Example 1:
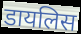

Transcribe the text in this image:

डायलिस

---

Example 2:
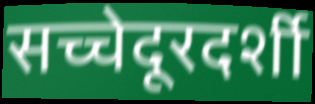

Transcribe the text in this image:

सच्चेदूरदर्शी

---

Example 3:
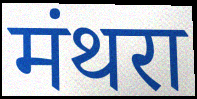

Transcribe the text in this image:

मंथरा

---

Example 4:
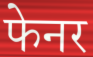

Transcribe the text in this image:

फेनर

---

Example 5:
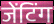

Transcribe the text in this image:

जेंटिंग